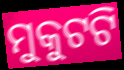
ମୁକୁଟଟି